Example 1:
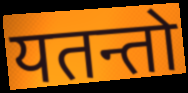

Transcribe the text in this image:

यतन्तो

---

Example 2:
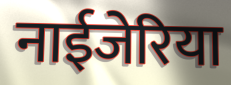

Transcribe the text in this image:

नाईजेरिया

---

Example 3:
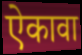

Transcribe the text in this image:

ऐकावा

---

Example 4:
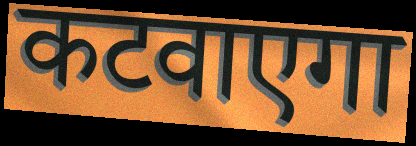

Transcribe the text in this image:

कटवाएगा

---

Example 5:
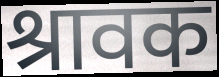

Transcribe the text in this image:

श्रावक